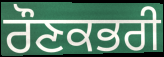
ਰੌਣਕਭਰੀ